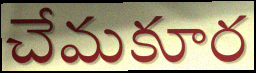
చేమకూర